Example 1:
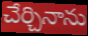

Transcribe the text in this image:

చేర్చినాను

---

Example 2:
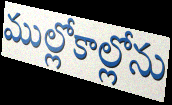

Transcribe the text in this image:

ముల్లోకాల్లోను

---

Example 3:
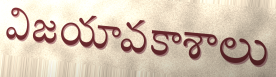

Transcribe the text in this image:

విజయావకాశాలు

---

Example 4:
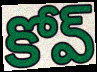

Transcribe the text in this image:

కోవ్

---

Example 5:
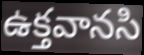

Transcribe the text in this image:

ఉక్తవానసి